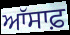
ਆੱਸਾਫ਼